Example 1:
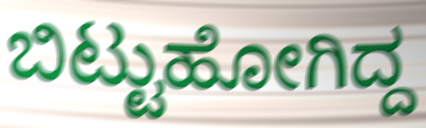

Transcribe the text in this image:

ಬಿಟ್ಟುಹೋಗಿದ್ದ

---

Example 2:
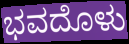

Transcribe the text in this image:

ಭವದೊಳು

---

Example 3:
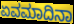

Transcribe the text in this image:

ಏವಮಾದಿನಾ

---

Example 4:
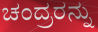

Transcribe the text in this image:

ಚಂದ್ರರನ್ನು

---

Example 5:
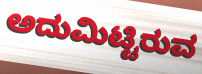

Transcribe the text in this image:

ಅದುಮಿಟ್ಟಿರುವ